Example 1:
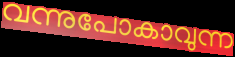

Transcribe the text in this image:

വന്നുപോകാവുന്ന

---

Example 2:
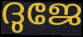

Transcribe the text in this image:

ദുജേ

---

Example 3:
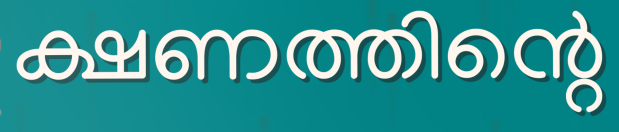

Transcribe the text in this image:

ക്ഷണത്തിന്റെ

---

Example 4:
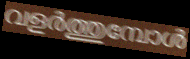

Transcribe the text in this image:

വളർത്തുമ്പോൾ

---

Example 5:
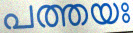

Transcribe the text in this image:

പത്തയഃ